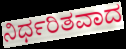
ನಿರ್ಧರಿತವಾದ